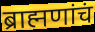
ब्राह्मणांचं